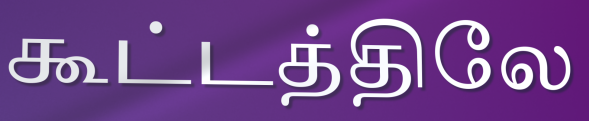
கூட்டத்திலே